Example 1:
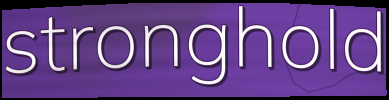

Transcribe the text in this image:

stronghold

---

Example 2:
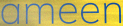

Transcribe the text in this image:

ameen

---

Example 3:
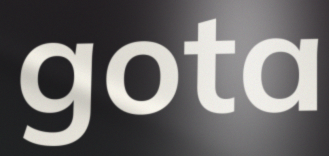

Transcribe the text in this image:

gota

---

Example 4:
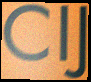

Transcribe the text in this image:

CIJ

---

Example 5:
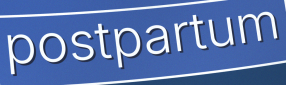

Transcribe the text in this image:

postpartum